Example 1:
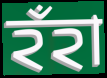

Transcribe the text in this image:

হঁহা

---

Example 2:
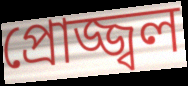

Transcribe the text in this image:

প্ৰোজ্জ্বল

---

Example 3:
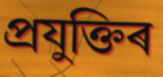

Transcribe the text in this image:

প্ৰযুক্তিৰ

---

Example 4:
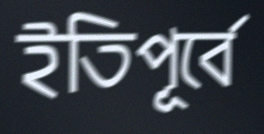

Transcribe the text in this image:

ইতিপূৰ্বে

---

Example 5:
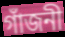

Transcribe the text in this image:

গাঁজনী